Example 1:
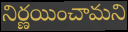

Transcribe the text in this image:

నిర్ణయించామని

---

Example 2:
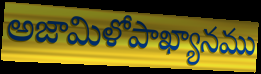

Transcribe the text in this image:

అజామిళోపాఖ్యానము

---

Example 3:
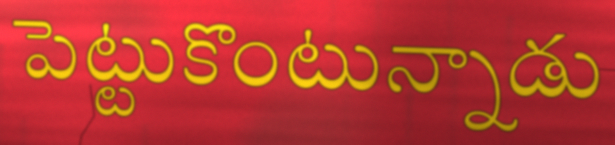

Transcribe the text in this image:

పెట్టుకొంటున్నాడు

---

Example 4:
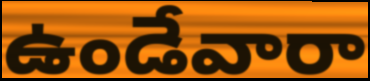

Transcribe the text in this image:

ఉండేవారా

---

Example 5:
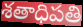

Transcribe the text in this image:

శతాధిపతి